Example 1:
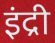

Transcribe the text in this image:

इंद्री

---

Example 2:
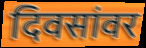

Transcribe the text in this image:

दिवसांवर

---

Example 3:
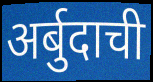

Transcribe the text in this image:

अर्बुदाची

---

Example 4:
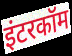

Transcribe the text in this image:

इंटरकॉम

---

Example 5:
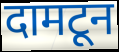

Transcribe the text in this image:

दामटून